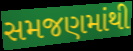
સમજણમાંથી